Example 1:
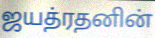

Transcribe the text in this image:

ஜயத்ரதனின்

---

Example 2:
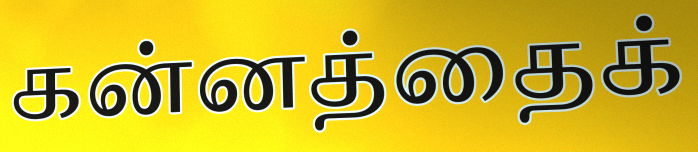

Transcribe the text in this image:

கன்னத்தைக்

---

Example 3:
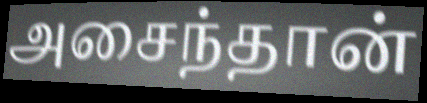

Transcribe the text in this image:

அசைந்தான்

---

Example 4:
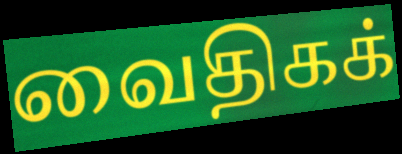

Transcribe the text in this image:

வைதிகக்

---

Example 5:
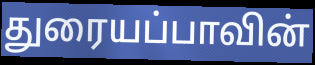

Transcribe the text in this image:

துரையப்பாவின்